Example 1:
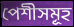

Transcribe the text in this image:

পেশীসমূহ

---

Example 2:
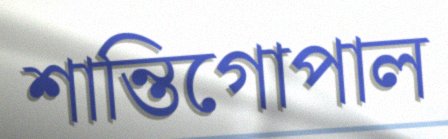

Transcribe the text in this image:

শান্তিগোপাল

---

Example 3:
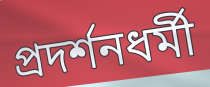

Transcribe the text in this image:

প্রদর্শনধর্মী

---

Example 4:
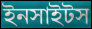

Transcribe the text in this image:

ইনসাইটস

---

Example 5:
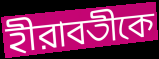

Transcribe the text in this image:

হীরাবতীকে